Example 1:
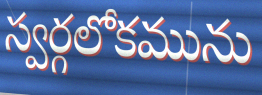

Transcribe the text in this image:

స్వర్గలోకమును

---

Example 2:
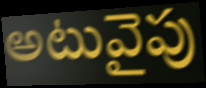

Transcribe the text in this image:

అటువైపు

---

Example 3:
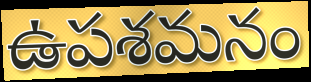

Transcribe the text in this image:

ఉపశమనం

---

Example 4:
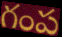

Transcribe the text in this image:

గంప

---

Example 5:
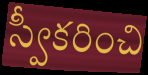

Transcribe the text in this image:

స్వీకరించి